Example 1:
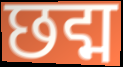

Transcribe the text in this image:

छद्म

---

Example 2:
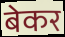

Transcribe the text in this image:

बेकर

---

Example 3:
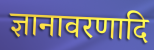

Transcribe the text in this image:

ज्ञानावरणादि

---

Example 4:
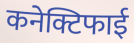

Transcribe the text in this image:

कनेक्टिफाई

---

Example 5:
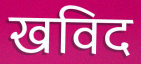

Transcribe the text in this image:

खविद